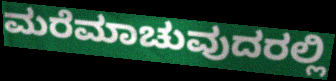
ಮರೆಮಾಚುವುದರಲ್ಲಿ